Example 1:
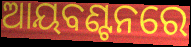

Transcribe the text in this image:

ଆୟବଣ୍ଟନରେ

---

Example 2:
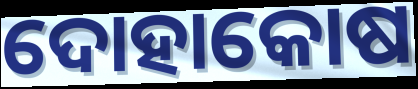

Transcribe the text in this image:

ଦୋହାକୋଷ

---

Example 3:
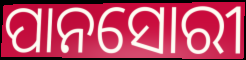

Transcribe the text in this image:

ପାନସୋରୀ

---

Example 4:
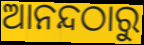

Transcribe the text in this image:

ଆନନ୍ଦଠାରୁ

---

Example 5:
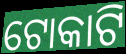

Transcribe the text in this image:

ଟୋକାଟି